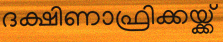
ദക്ഷിണാഫ്രിക്കയ്ക്ക്